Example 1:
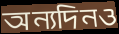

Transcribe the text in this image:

অন্যদিনও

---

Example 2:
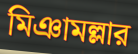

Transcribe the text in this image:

মিঞামল্লার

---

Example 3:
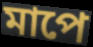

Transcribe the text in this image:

মাপে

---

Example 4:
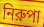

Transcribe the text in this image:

নিরুপা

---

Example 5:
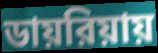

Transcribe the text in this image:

ডায়রিয়ায়